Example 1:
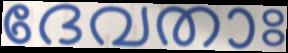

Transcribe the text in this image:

ദേവതാഃ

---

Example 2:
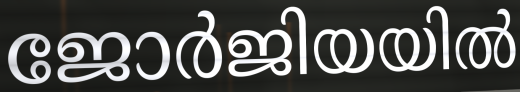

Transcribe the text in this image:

ജോർജിയയിൽ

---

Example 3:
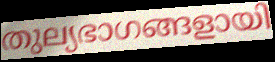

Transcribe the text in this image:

തുല്യഭാഗങ്ങളായി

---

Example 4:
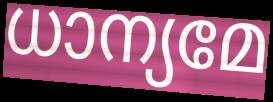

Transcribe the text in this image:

ധാന്യമേ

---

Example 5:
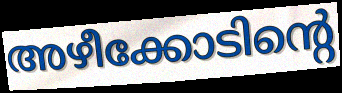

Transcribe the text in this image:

അഴീക്കോടിന്റെ